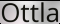
Ottla